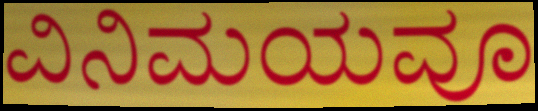
ವಿನಿಮಯವೂ